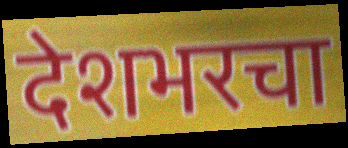
देशभरचा